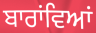
ਬਾਰਾਂਵਿਆਂ